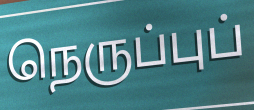
நெருப்புப்